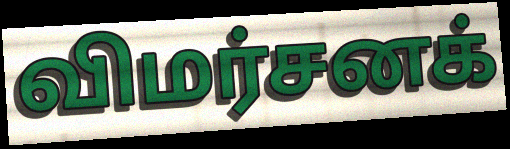
விமர்சனக்